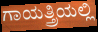
ಗಾಯತ್ತ್ರಿಯಲ್ಲಿ